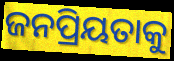
ଜନପ୍ରିୟତାକୁ